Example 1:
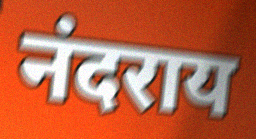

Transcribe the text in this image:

नंदराय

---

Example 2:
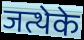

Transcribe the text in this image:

जत्थेके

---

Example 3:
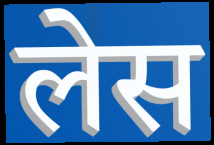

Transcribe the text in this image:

लेस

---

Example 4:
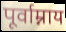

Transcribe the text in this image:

पूर्वाम्नाय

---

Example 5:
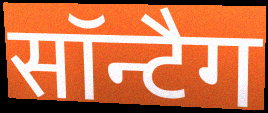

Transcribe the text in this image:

सॉन्टैग